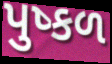
પુષ્કળ